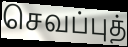
செவப்புத்